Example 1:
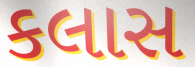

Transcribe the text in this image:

કલાસ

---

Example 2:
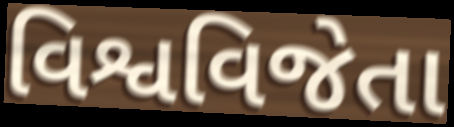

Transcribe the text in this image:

વિશ્વવિજેતા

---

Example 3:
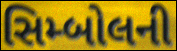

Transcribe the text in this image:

સિમ્બોલની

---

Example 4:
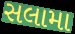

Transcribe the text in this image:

સલામા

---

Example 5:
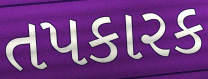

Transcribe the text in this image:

તપકારક